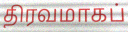
திரவமாகப்